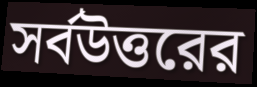
সর্বউত্তরের